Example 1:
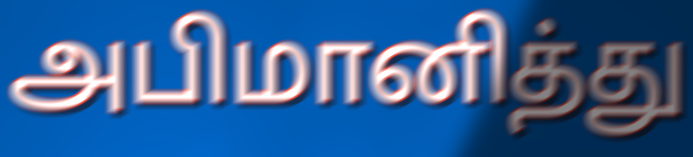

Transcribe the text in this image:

அபிமானித்து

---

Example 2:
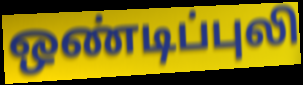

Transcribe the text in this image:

ஒண்டிப்புலி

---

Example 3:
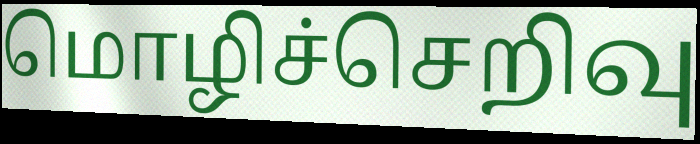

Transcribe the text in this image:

மொழிச்செறிவு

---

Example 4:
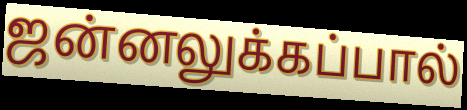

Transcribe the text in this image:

ஜன்னலுக்கப்பால்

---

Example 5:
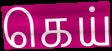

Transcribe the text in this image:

கெய்